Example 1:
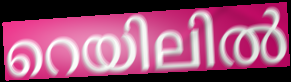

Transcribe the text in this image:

റെയിലിൽ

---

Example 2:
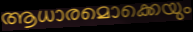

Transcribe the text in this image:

ആധാരമൊക്കെയും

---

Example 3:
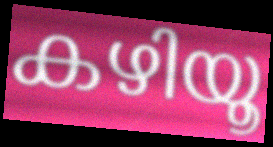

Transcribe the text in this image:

കഴിയൂ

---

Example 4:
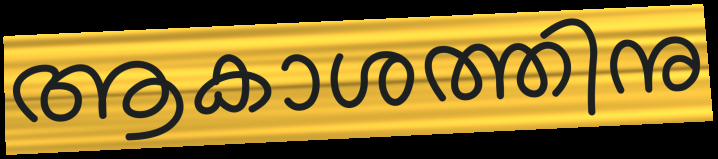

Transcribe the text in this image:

ആകാശത്തിനു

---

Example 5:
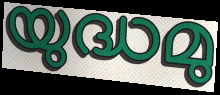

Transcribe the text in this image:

യുദ്ധമു